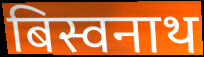
बिस्वनाथ